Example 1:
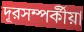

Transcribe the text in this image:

দূরসম্পর্কীয়া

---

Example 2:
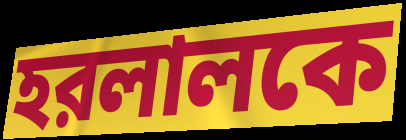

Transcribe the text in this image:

হরলালকে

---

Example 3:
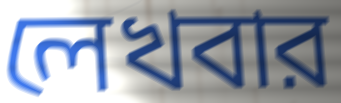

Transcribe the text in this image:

লেখবার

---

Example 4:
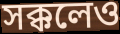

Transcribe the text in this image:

সক্কলেও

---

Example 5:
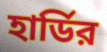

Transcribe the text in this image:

হার্ডির